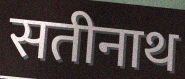
सतीनाथ